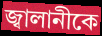
জ্বালানীকে